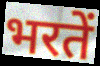
भरतें